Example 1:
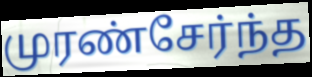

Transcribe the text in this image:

முரண்சேர்ந்த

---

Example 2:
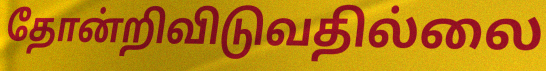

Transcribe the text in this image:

தோன்றிவிடுவதில்லை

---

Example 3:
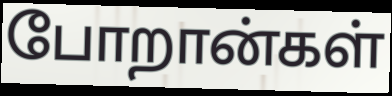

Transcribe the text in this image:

போறான்கள்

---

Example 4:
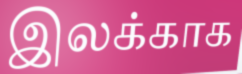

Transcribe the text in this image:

இலக்காக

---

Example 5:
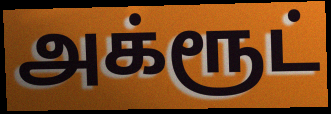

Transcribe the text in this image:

அக்ரூட்